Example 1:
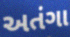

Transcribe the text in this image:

અતંગા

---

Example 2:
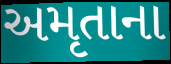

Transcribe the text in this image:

અમૃતાના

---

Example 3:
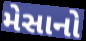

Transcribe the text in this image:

મેસાનો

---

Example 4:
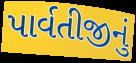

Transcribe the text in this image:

પાર્વતીજીનું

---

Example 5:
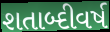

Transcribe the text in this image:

શતાબ્દીવર્ષ